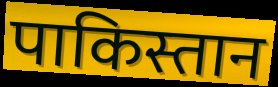
पाकिस्‍तान